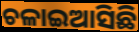
ଚଳାଇଆସିଛି